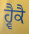
ਹ੍ਵੈਕੈ